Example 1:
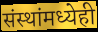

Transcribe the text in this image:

संस्थांमध्येही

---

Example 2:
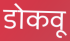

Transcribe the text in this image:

डोकवू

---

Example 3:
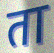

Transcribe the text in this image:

ता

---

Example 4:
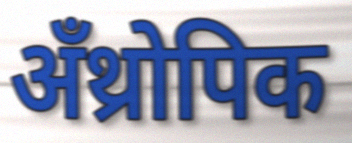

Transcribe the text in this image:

अँथ्रोपिक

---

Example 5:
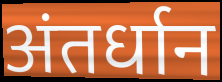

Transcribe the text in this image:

अंतर्धान